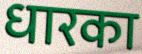
धारका